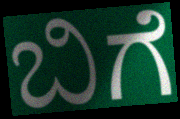
ಬಿಗೆ